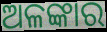
ଅଳଙ୍କାର